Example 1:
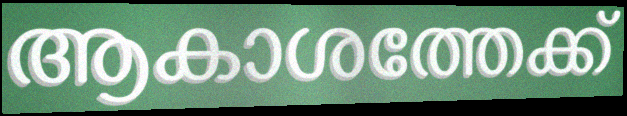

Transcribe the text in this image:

ആകാശത്തേക്ക്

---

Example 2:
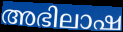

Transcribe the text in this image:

അഭിലാഷ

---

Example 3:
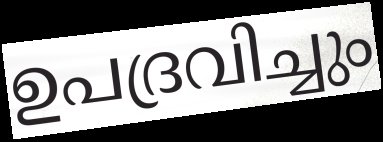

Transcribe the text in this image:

ഉപദ്രവിച്ചും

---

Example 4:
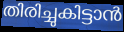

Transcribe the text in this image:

തിരിച്ചുകിട്ടാൻ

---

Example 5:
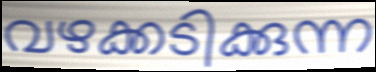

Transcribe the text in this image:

വഴക്കടിക്കുന്ന